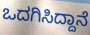
ಒದಗಿಸಿದ್ದಾನೆ